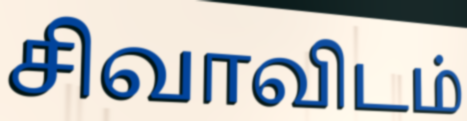
சிவாவிடம்